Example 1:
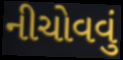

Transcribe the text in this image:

નીચોવવું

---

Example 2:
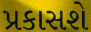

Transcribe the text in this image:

પ્રકાસશે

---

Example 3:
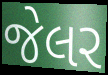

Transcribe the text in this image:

જેલર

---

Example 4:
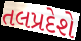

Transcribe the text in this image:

તલપ્રદેશે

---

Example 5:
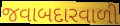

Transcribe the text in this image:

જવાબદારવાળી